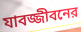
যাবজ্জীবনের